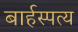
बार्हस्पत्य